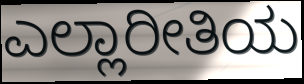
ಎಲ್ಲಾರೀತಿಯ